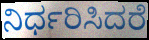
ನಿರ್ಧರಿಸಿದರೆ